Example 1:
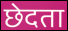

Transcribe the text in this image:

छेदता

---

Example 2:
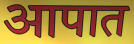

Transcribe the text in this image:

आपात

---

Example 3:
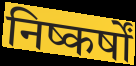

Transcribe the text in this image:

निष्कर्षों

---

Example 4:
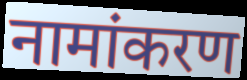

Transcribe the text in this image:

नामांकरण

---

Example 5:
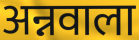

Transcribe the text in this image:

अन्नवाला